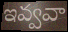
ఇవ్వవా